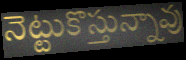
నెట్టుకొస్తున్నావు